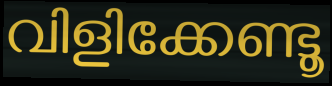
വിളിക്കേണ്ടൂ